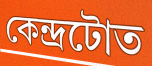
কেন্দ্ৰটোত